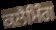
ਕਲੈਮਿੰਗ